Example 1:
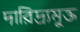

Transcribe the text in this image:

দারিদ্র্যমুক্ত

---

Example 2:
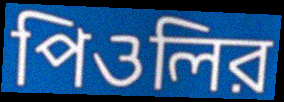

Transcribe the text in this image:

পিওলির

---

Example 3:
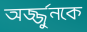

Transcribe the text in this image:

অর্জ্জুনকে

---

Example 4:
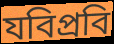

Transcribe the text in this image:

যবিপ্রবি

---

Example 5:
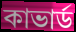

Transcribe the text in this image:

কাভার্ড